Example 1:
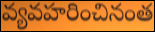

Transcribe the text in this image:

వ్యవహరించినంత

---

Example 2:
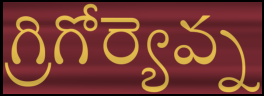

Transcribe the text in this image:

గ్రిగోర్యెవ్న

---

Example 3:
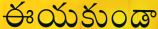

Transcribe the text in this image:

ఈయకుండా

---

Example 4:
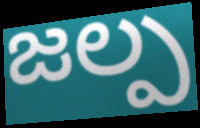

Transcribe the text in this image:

జల్ప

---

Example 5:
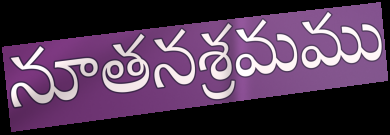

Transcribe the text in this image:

నూతనశ్రమము